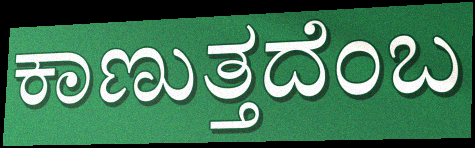
ಕಾಣುತ್ತದೆಂಬ